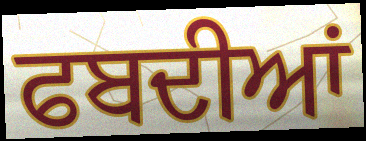
ਫਬਦੀਆਂ